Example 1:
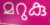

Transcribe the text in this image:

മറുകു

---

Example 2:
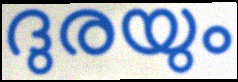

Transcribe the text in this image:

ദുരയും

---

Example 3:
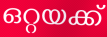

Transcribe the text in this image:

ഒറ്റയക്ക്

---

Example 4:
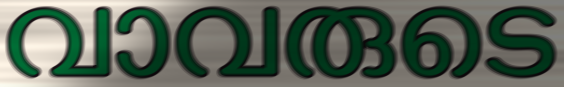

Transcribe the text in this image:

വാവരുടെ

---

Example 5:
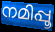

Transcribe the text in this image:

നമിപ്പൂ